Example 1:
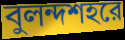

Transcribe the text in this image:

বুলন্দশহরে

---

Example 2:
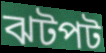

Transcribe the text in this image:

ঝটপট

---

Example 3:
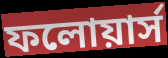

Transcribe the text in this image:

ফলোয়ার্স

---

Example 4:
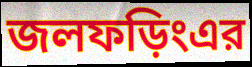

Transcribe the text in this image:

জলফড়িংএর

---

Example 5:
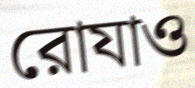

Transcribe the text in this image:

রোযাও